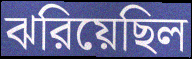
ঝরিয়েছিল